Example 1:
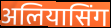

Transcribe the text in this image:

अलियासिंग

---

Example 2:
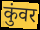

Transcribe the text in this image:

कुंवर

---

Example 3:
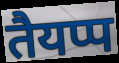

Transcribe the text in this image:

तैयप्प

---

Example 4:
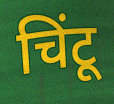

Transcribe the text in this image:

चिंटू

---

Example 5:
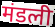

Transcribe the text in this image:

मंडली